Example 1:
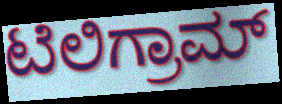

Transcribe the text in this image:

ಟೆಲಿಗ್ರಾಮ್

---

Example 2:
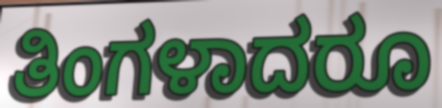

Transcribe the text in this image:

ತಿಂಗಳಾದರೂ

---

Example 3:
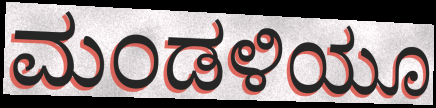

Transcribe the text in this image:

ಮಂಡಳಿಯೂ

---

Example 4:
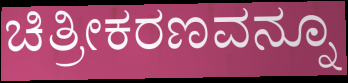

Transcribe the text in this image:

ಚಿತ್ರೀಕರಣವನ್ನೂ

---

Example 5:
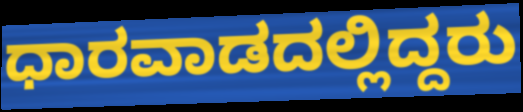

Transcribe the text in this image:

ಧಾರವಾಡದಲ್ಲಿದ್ದರು